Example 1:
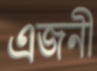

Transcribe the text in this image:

এজনী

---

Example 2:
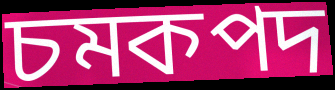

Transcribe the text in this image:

চমকপদ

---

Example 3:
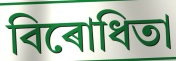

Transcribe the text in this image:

বিৰোধিতা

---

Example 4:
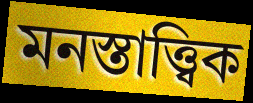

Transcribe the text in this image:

মনস্তাত্ত্বিক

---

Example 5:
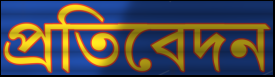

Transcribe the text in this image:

প্ৰতিবেদন